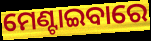
ମେଣ୍ଟାଇବାରେ